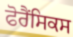
ਫੋਰੈਂਸਿਕਸ